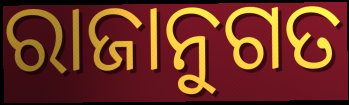
ରାଜାନୁଗତ